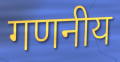
गणनीय